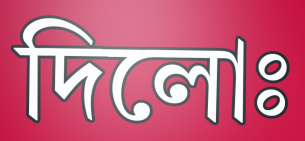
দিলোঃ